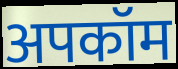
अपकॉम